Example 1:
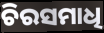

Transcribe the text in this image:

ଚିରସମାଧି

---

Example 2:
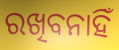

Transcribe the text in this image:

ରଖିବନାହିଁ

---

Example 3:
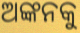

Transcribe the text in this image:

ଅଙ୍କନକୁ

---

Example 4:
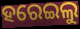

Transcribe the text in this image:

ହରେଇଲୁ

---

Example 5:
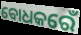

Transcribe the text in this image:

ବୋଧକରେଁ